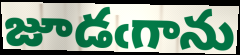
జూడఁగాను